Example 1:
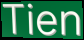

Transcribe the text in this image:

Tien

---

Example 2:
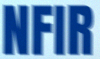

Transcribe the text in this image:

NFIR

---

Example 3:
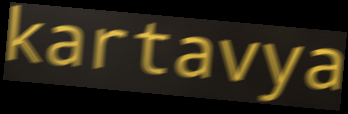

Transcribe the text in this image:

kartavya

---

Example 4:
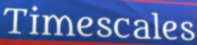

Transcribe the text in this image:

Timescales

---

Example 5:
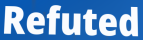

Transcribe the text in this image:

Refuted